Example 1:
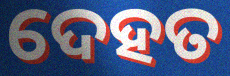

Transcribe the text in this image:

ଦେହତ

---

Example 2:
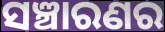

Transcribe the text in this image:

ସଞ୍ଚାରଣର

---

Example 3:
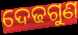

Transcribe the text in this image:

ଦେଢଗୁଣ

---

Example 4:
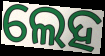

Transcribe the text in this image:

ଲେହ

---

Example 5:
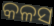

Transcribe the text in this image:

କଳସ